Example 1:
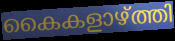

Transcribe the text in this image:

കൈകളാഴ്ത്തി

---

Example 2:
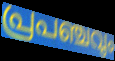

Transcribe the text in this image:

പ്രപഞ്ചവും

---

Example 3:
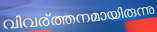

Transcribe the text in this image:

വിവര്ത്തനമായിരുന്നു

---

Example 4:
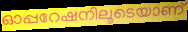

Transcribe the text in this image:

ഓപ്പറേഷനിലൂടെയാണ്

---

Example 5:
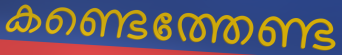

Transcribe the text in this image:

കണ്ടെത്തേണ്ട